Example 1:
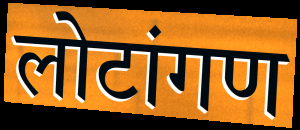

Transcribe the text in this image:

लोटांगण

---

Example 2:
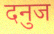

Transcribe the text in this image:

दनुज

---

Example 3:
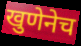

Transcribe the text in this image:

खुणेनेच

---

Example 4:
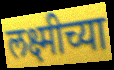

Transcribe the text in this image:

लक्ष्मीच्या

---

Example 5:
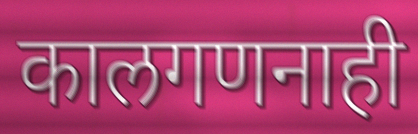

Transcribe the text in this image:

कालगणनाही